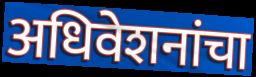
अधिवेशनांचा